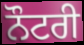
ਨੌਟਰੀ